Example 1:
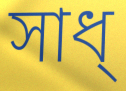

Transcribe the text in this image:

সাধ্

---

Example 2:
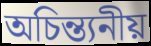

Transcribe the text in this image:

অচিন্ত্যনীয়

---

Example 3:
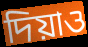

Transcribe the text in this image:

দিয়াও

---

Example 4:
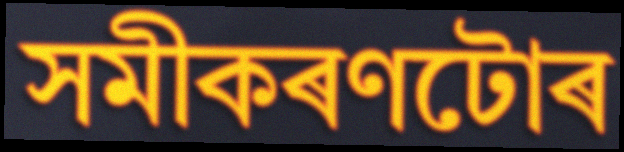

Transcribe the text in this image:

সমীকৰণটোৰ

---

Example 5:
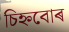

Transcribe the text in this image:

চিহ্নবোৰ